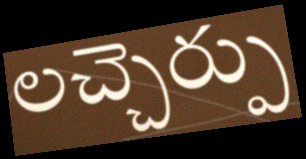
లచ్చెర్పు